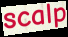
scalp